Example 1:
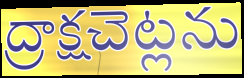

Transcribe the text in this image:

ద్రాక్షచెట్లను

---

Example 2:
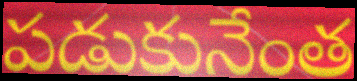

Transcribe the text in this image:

పడుకునేంత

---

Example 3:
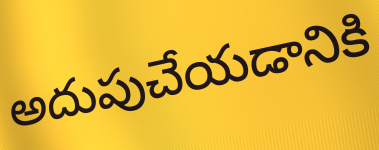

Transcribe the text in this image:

అదుపుచేయడానికి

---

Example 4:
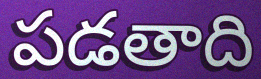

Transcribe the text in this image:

పడతాది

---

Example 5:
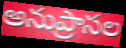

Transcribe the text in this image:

అనుప్రాసల